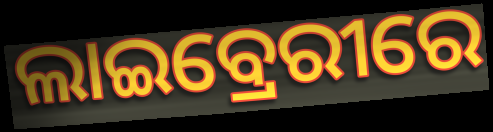
ଲାଇବ୍ରେରୀରେ